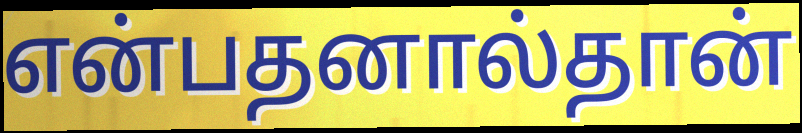
என்பதனால்தான்